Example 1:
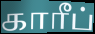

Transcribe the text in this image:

காரீப்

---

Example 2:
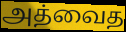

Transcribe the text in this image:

அத்வைத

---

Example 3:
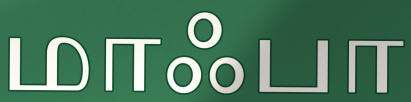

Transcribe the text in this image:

மாஃபா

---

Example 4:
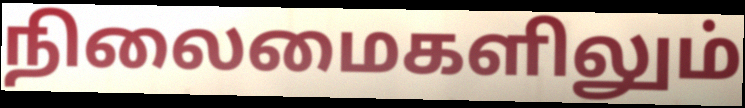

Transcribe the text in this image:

நிலைமைகளிலும்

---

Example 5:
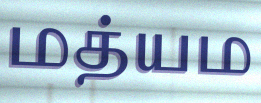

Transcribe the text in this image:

மத்யம